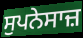
ਸੁਪਨੇਸਾਜ਼